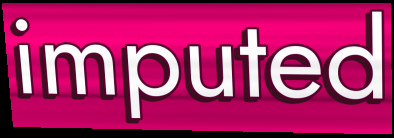
imputed